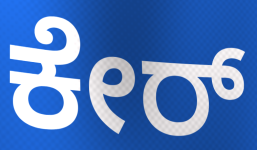
ಕೇರ್